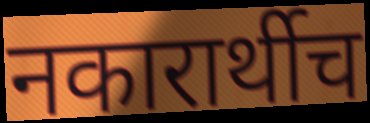
नकारार्थीच